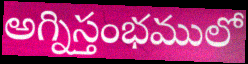
అగ్నిస్తంభములో